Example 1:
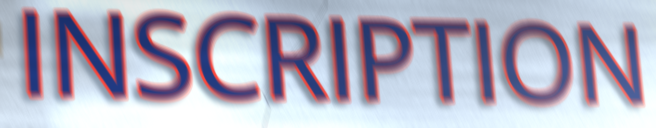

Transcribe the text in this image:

INSCRIPTION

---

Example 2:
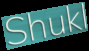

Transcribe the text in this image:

Shukl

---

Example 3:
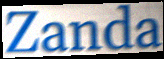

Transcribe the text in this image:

Zanda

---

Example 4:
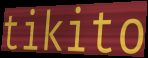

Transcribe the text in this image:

tikito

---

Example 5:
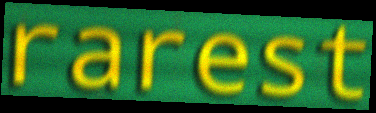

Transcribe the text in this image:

rarest